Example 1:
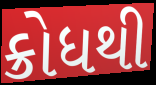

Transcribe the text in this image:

ક્રોધથી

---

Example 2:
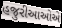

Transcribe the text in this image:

હજુરીઆઓએ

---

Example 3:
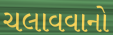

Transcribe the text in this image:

ચલાવવાનો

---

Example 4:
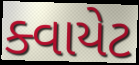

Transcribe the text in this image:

ક્વાયેટ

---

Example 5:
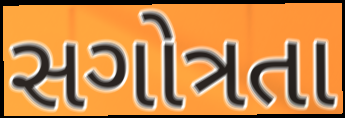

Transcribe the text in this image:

સગોત્રતા